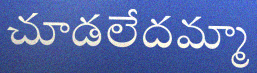
చూడలేదమ్మా